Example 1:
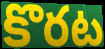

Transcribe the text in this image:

కొరట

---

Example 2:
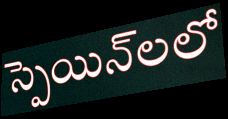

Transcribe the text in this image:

స్పెయిన్‌లలో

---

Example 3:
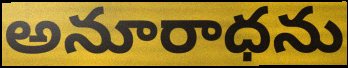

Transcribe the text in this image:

అనూరాధను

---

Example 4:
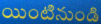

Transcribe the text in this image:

యింటినుండి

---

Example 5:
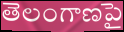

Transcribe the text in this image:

తెలంగాణపై